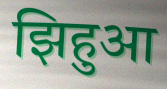
झिहुआ